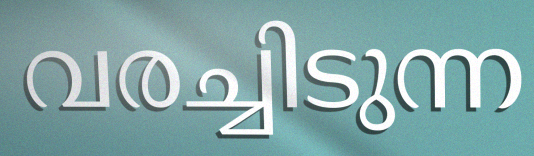
വരച്ചിടുന്ന